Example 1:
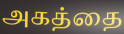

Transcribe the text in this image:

அகத்தை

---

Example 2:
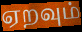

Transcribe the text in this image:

ஏறவும்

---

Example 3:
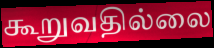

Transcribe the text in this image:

கூறுவதில்லை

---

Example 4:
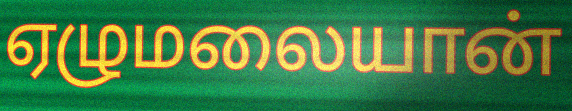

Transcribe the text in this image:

ஏழுமலையான்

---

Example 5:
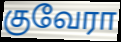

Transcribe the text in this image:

குவேரா